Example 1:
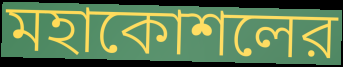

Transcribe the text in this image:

মহাকোশলের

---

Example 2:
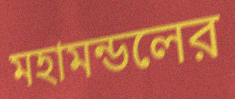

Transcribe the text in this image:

মহামন্ডলের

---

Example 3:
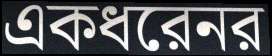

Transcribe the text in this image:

একধরেনর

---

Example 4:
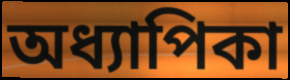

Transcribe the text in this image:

অধ্যাপিকা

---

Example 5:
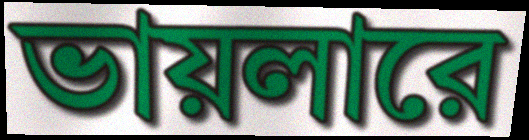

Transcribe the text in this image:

ভায়লারে